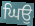
ਘਿਉ